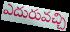
ఎదురువచ్చి